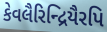
કેવલૈરિન્દ્રિયૈરપિ